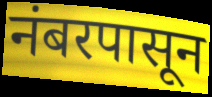
नंबरपासून